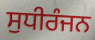
ਸੁਧੀਰੰਜਨ